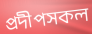
প্রদীপসকল